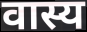
वास्य